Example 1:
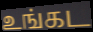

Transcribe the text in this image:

உங்கட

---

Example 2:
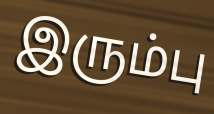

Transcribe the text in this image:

இரும்பு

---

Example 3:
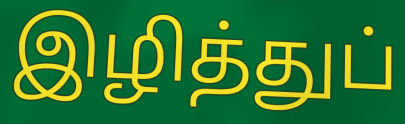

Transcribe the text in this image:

இழித்துப்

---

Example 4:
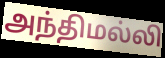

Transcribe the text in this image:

அந்திமல்லி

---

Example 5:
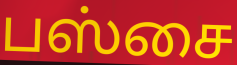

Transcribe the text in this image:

பஸ்சை